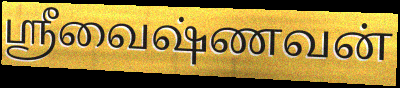
ஸ்ரீவைஷ்ணவன்